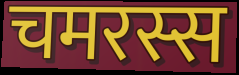
चमरस्स